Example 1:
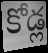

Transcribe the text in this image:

కోడ్ల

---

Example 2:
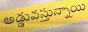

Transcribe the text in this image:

అడ్డువస్తున్నాయి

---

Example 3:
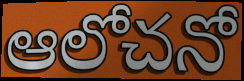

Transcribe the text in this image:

ఆలోచనో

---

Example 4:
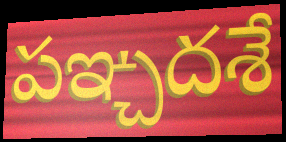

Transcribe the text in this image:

పఞ్చదశే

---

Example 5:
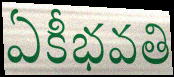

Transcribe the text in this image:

ఏకీభవతి